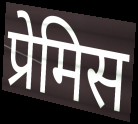
प्रेमिस